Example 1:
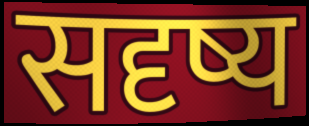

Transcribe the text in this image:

सदृष्य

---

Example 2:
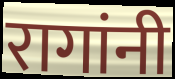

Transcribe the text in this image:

रागांनी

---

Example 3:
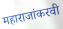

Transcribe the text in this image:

महाराजांकरवी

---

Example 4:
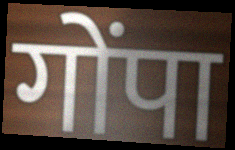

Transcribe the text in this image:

गोंपा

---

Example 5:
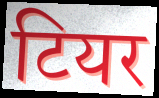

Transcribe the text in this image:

टियर